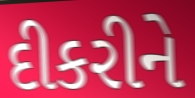
દીકરીને